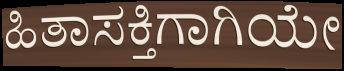
ಹಿತಾಸಕ್ತಿಗಾಗಿಯೇ